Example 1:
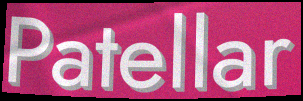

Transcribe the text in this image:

Patellar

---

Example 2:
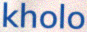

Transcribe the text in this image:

kholo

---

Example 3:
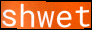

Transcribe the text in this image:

shwet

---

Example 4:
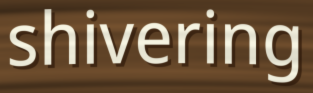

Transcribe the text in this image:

shivering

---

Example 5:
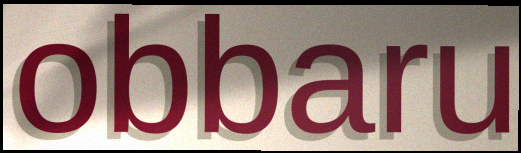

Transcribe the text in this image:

obbaru